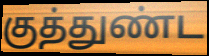
குத்துண்ட